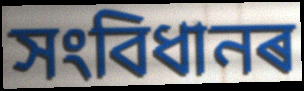
সংবিধানৰ